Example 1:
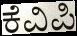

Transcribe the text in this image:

ಕೆವಿಪಿ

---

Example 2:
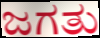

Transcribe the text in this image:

ಜಗತು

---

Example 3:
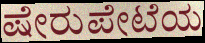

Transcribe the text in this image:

ಷೇರುಪೇಟೆಯ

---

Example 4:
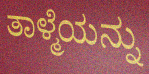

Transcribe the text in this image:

ತಾಳ್ಮೆಯನ್ನು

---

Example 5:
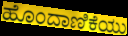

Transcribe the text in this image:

ಹೊಂದಾಣಿಕೆಯು